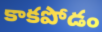
కాకపోడం